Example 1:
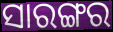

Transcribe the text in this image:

ସାରଙ୍ଗର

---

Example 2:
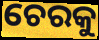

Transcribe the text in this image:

ଚେରକୁ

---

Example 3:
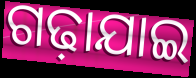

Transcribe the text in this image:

ଗଢ଼ାଯାଇ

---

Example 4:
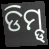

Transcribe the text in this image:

ଡିମ୍ଡ୍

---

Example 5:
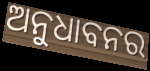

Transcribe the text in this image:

ଅନୁଧାବନର